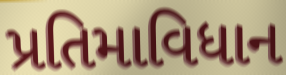
પ્રતિમાવિધાન